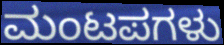
ಮಂಟಪಗಳು